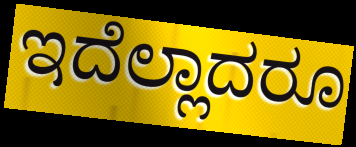
ಇದೆಲ್ಲಾದರೂ